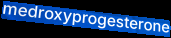
medroxyprogesterone